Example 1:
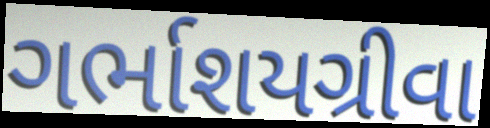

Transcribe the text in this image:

ગર્ભાશયગ્રીવા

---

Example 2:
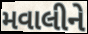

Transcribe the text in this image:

મવાલીને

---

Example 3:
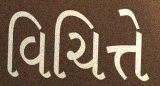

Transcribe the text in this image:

વિચિત્તે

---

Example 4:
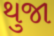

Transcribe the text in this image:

થુજા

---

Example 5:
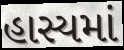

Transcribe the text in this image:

હાસ્યમાં